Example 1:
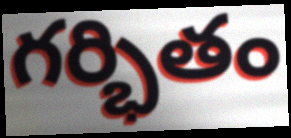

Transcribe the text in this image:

గర్భితం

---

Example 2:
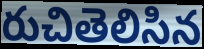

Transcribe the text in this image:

రుచితెలిసిన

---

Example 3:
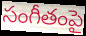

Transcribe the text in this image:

సంగీతంపై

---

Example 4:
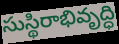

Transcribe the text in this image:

సుస్థిరాభివృద్ధి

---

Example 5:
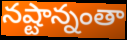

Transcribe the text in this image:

నష్టాన్నంతా